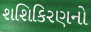
શશિકિરણનો